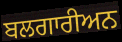
ਬਲਗਾਰੀਅਨ